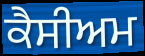
ਕੈਸੀਅਮ